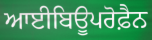
ਆਈਬਿਊਪਰੋਫ਼ੈਨ